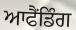
ਆਫੈਂਡਿੰਗ